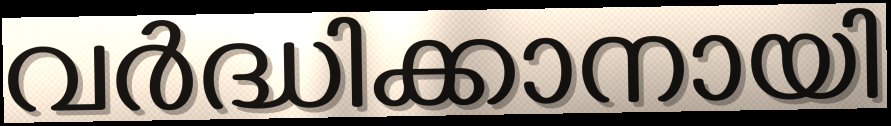
വർദ്ധിക്കാനായി